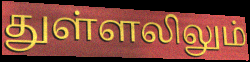
துள்ளலிலும்